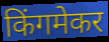
किंगमेकर